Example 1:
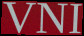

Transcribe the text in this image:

VNI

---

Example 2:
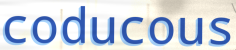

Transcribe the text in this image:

coducous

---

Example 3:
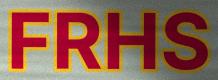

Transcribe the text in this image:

FRHS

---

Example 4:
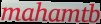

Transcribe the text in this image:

mahamtb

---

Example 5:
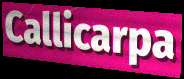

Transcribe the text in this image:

Callicarpa